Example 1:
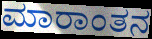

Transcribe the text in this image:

ಮಾರಾಂತನ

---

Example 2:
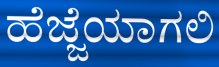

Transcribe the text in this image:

ಹೆಜ್ಜೆಯಾಗಲಿ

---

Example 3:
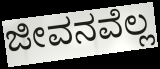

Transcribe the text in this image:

ಜೀವನವೆಲ್ಲ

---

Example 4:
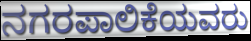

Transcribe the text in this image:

ನಗರಪಾಲಿಕೆಯವರು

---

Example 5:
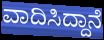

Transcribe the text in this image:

ವಾದಿಸಿದ್ದಾನೆ